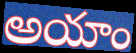
అయాం